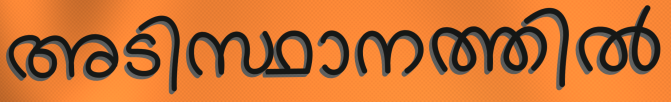
അടിസ്ഥാനത്തിൽ